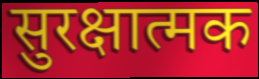
सुरक्षात्मक